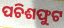
ପଚିଶଫୁଟ